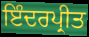
ਇੰਦਰਪ੍ਰੀਤ